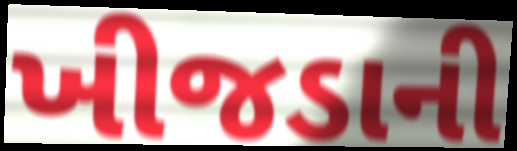
ખીજડાની